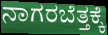
ನಾಗರಬೆತ್ತಕ್ಕೆ